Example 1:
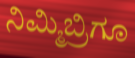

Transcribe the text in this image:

ನಿಮ್ಮಿಬ್ರಿಗೂ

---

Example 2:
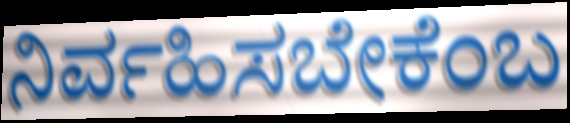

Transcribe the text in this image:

ನಿರ್ವಹಿಸಬೇಕೆಂಬ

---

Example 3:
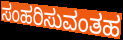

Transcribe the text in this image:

ಸಂಹರಿಸುವಂತಹ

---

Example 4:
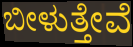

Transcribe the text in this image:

ಬೀಳುತ್ತೇವೆ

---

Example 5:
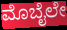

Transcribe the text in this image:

ಮೊಬೈಲೇ